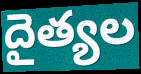
దైత్యల